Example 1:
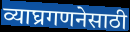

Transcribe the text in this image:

व्याघ्रगणनेसाठी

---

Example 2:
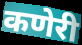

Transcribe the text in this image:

कणेरी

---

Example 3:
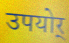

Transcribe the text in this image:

उपयोर्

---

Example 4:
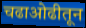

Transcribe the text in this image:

चढाओढीतून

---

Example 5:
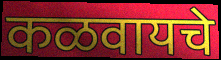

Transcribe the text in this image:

कळवायचे